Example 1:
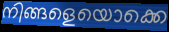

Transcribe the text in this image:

നിങ്ങളെയൊക്കെ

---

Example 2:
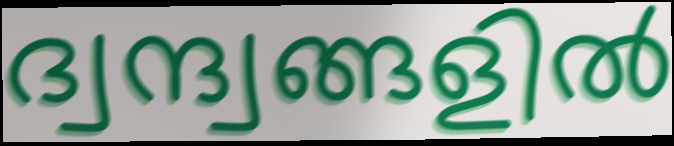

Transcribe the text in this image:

ദ്വന്ദ്വങ്ങളിൽ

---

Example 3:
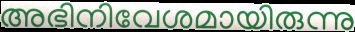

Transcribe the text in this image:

അഭിനിവേശമായിരുന്നു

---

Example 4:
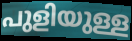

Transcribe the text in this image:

പുളിയുള്ള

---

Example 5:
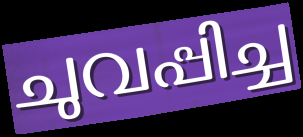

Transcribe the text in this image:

ചുവപ്പിച്ച